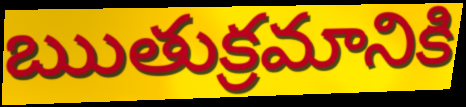
ఋతుక్రమానికి